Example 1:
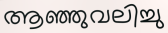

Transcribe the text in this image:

ആഞ്ഞുവലിച്ചു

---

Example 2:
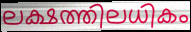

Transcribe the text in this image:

ലക്ഷത്തിലധികം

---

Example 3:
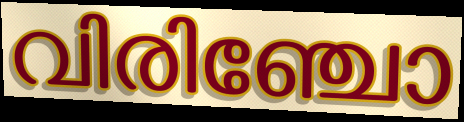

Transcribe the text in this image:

വിരിഞ്ചോ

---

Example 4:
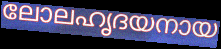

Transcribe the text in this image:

ലോലഹൃദയനായ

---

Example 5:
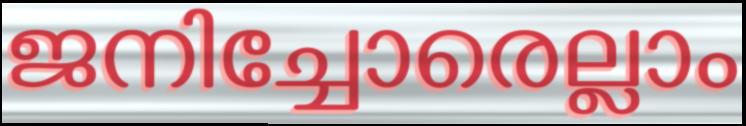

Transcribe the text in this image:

ജനിച്ചോരെല്ലാം